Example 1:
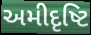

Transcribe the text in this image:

અમીદૃષ્ટિ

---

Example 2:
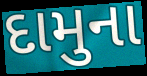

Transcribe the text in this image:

દામુના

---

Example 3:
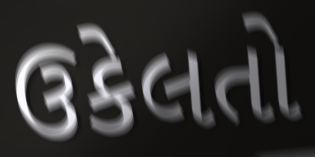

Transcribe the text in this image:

ઉકેલતો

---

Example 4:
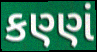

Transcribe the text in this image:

કણ્ણં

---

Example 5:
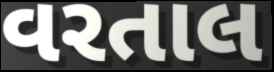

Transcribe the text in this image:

વરતાલ